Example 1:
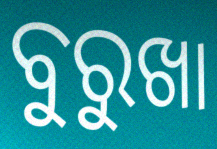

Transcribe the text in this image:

ବୁରୁଖା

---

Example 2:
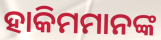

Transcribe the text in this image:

ହାକିମମାନଙ୍କ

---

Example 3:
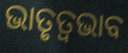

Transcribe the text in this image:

ଭାତୃତ୍ବଭାବ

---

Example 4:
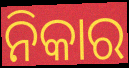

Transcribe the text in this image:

ନିକାର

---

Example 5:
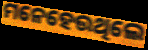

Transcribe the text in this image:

ମନେହେଉଥିଲେ